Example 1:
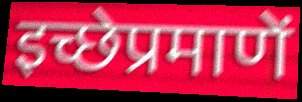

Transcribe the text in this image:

इच्छेप्रमाणें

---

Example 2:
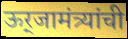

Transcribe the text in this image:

ऊर्जामंत्र्यांची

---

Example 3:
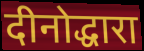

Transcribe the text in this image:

दीनोद्धारा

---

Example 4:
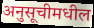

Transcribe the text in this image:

अनुसूचीमधील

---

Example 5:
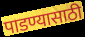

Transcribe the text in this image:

पाडण्यासाठी